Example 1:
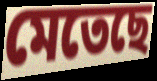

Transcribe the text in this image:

মেতেছে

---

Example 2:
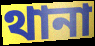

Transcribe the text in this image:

থানা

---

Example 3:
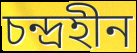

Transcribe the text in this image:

চন্দ্রহীন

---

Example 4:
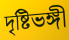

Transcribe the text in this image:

দৃষ্টিভঙ্গী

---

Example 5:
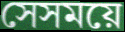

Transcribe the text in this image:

সেসময়ে